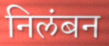
निलंबन